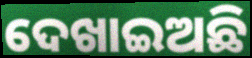
ଦେଖାଇଅଛି